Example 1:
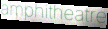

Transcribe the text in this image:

amphitheatre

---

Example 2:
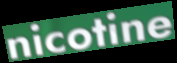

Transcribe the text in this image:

nicotine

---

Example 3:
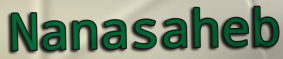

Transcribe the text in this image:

Nanasaheb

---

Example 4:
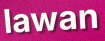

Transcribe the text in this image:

lawan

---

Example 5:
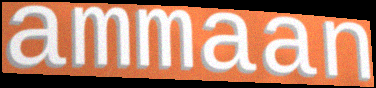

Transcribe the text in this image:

ammaan